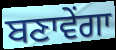
ਬਣਾਵੇਂਗਾ